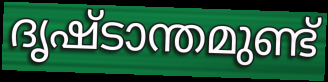
ദൃഷ്ടാന്തമുണ്ട്